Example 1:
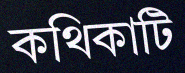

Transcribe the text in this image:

কথিকাটি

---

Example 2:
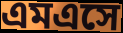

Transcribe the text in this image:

এমএসে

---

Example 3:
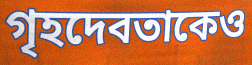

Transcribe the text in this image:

গৃহদেবতাকেও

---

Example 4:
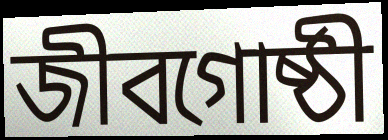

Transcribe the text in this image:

জীবগোষ্ঠী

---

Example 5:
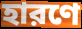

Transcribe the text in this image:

হারণে